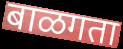
बाळगता